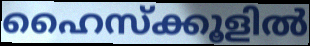
ഹൈസ്ക്കൂളിൽ